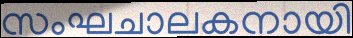
സംഘചാലകനായി